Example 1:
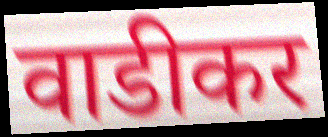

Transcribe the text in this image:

वाडीकर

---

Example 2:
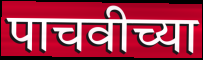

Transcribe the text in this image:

पाचवीच्या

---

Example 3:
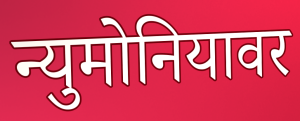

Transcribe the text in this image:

न्युमोनियावर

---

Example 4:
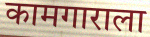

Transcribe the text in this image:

कामगाराला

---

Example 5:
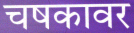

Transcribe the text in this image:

चषकावर